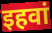
इहवां